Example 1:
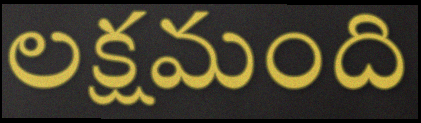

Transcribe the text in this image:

లక్షమంది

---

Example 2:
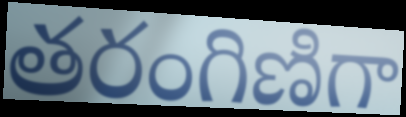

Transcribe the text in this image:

తరంగిణిగా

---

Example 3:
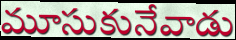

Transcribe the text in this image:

మూసుకునేవాడు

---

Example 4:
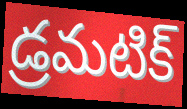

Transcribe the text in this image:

డ్రమటిక్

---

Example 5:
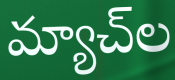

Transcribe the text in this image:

మ్యాచ్‌ల